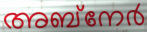
അബ്നേർ